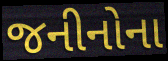
જનીનોના